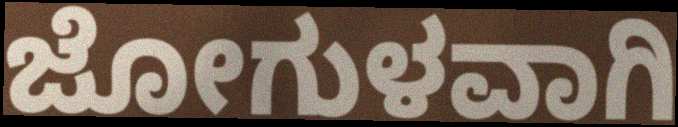
ಜೋಗುಳವಾಗಿ